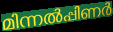
മിന്നൽപ്പിണർ